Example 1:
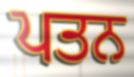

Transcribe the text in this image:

ਪਤਨ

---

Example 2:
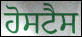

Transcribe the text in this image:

ਹੋਸਟੈਸ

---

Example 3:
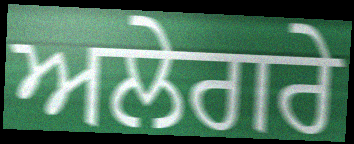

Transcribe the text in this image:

ਅਲੇਗਰੇ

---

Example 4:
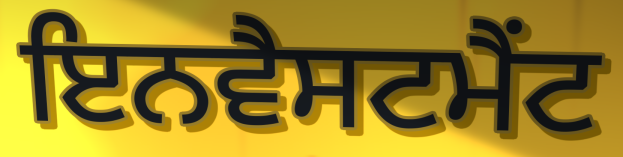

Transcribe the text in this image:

ਇਨਵੈਸਟਮੈਂਟ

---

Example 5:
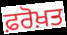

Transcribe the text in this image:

ਫ਼ਰੋਖ਼ਤ